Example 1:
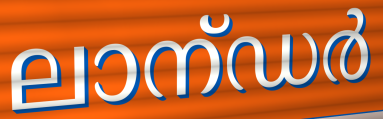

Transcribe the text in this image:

ലാന്ഡർ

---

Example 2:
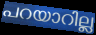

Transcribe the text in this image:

പറയാറില്ല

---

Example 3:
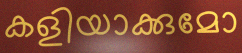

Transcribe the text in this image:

കളിയാക്കുമോ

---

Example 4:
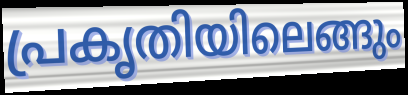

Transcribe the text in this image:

പ്രകൃതിയിലെങ്ങും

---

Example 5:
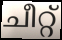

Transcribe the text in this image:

ചീറ്റ്